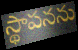
స్థాపనను